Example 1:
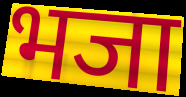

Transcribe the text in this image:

भजा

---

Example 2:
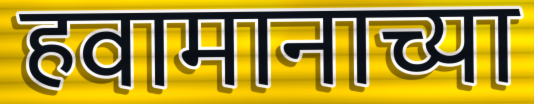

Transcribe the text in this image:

हवामानाच्या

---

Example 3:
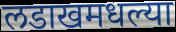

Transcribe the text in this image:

लडाखमधल्या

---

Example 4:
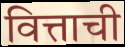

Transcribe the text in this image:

वित्ताची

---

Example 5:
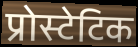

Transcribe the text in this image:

प्रोस्टेटिक